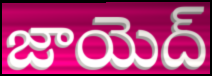
జాయెద్